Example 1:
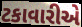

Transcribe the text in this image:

ટકાવારીએ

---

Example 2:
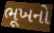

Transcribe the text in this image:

ભૂખનો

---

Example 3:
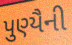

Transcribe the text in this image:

પુણ્યૈની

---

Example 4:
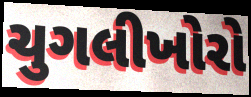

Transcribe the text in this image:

ચુગલીખોરો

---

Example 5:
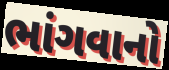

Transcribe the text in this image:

ભાંગવાનો